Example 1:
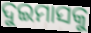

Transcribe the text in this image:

ଦୁଇମାସକୁ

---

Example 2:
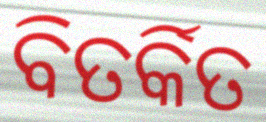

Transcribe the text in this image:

ବିତର୍କିତ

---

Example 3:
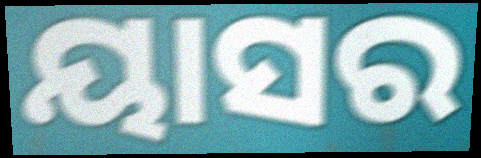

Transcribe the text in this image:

ୟାସର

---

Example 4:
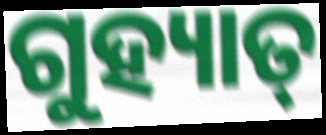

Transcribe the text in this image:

ଗୁହ୍ୟାତ୍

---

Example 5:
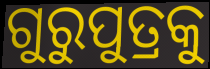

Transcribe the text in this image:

ଗୁରୁପୁତ୍ରକୁ